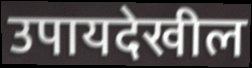
उपायदेखील